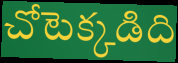
చోటెక్కడిది